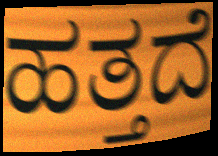
ಹತ್ತದೆ